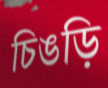
চিঙড়ি